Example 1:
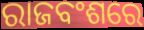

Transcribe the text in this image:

ରାଜବଂଶରେ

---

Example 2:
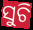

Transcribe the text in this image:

ସୁଚି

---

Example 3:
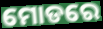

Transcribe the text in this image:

ମୋଡରେ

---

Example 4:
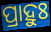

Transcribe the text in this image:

ପ୍ରାହୁଃ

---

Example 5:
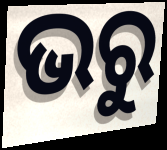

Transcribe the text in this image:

ଭରୁ